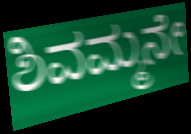
ಶಿವಮ್ಮನೇ